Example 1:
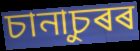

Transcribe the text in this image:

চানাচুৰৰ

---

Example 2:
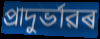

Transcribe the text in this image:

প্ৰাদুৰ্ভাৱৰ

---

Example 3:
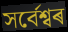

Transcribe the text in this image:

সৰ্বেশ্বৰ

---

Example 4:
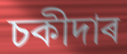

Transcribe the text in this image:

চকীদাৰ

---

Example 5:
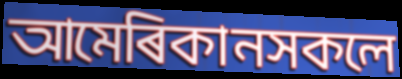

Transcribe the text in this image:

আমেৰিকানসকলে